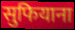
सुफियाना